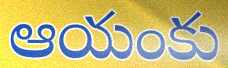
ఆయంకు